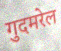
गुदमरेल